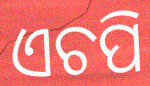
ଏଚପି